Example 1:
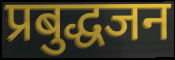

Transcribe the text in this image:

प्रबुद्धजन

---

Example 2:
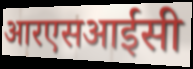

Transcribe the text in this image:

आरएसआईसी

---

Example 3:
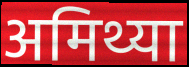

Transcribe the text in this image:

अमिथ्या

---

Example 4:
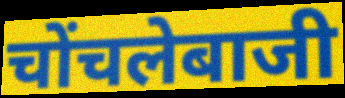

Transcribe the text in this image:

चोंचलेबाजी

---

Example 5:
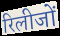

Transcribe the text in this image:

रिलीजों